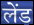
लेंड